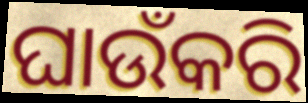
ଘାଉଁକରି